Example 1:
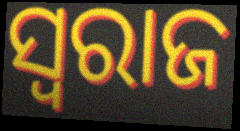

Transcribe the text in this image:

ସ୍ଵରାଜ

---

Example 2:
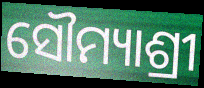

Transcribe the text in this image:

ସୌମ୍ୟାଶ୍ରୀ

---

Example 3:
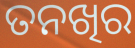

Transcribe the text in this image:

ତନଖିର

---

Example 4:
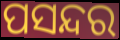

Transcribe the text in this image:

ପସନ୍ଦର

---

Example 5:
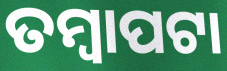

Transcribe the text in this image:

ତମ୍ବାପଟା